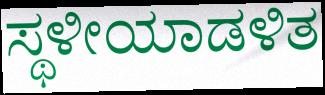
ಸ್ಥಳೀಯಾಡಳಿತ